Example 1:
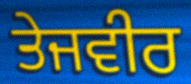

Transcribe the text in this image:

ਤੇਜਵੀਰ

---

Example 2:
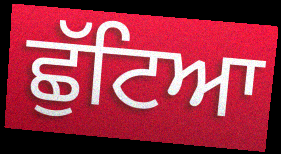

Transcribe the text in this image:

ਛੁੱਟਿਆ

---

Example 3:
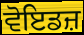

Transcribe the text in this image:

ਵੋਇਡਜ਼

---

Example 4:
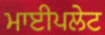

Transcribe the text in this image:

ਮਾਈਪਲੇਟ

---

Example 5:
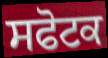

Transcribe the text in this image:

ਸਫੋਟਕ